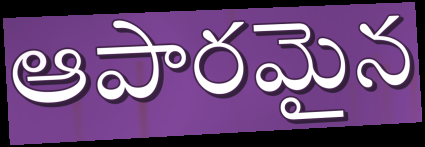
ఆపారమైన